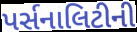
પર્સનાલિટીની